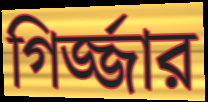
গির্জ্জার